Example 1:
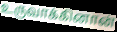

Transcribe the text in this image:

உருவாக்கினான்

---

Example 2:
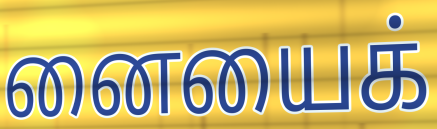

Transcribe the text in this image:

னையைக்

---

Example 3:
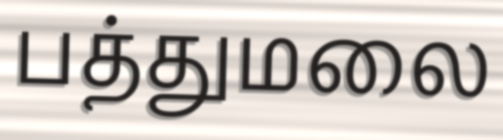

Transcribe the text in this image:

பத்துமலை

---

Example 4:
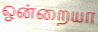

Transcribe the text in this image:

ஒன்றையா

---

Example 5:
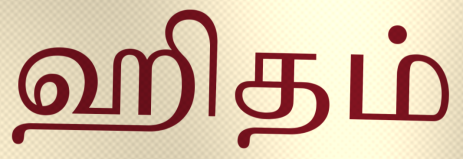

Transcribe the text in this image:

ஹிதம்